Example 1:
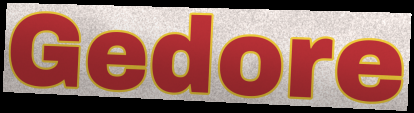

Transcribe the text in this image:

Gedore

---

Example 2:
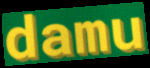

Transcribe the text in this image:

damu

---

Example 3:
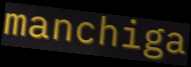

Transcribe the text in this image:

manchiga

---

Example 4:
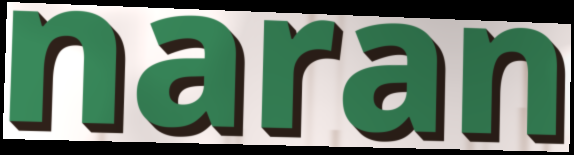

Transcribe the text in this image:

naran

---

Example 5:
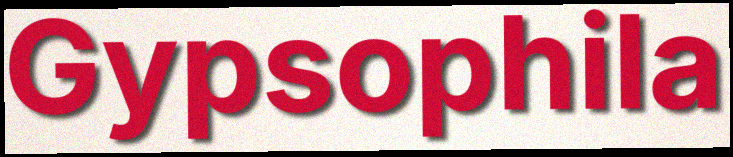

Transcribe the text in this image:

Gypsophila